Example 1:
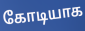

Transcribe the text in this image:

கோடியாக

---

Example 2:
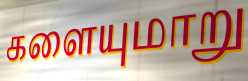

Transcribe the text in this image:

களையுமாறு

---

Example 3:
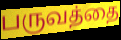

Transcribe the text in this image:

பருவத்தை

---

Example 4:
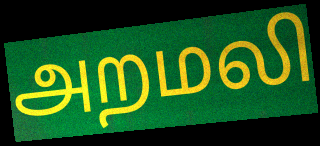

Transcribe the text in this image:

அறமலி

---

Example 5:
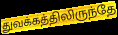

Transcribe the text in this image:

துவக்கத்திலிருந்தே